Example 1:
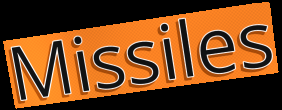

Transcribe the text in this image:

Missiles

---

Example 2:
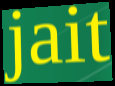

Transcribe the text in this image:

jait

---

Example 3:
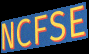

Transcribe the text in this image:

NCFSE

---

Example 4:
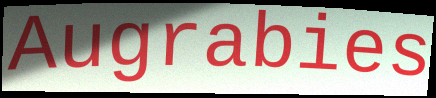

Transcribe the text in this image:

Augrabies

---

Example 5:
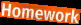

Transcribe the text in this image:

Homework